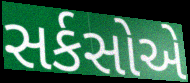
સર્કસોએ